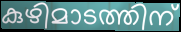
കുഴിമാടത്തിന്